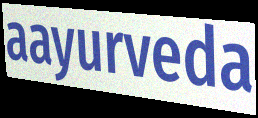
aayurveda